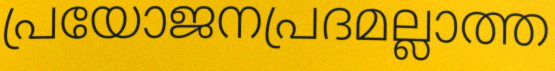
പ്രയോജനപ്രദമല്ലാത്ത